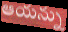
ఆయన్ను